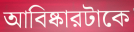
আবিষ্কারটাকে